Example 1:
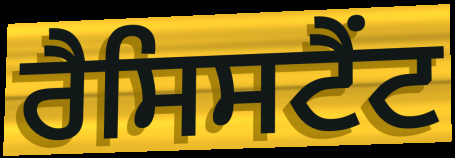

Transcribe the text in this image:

ਰੈਸਿਸਟੈਂਟ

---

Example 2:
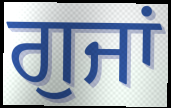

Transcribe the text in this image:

ਗੁਜਾਂ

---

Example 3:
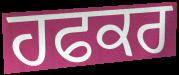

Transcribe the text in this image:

ਹਫਕਰ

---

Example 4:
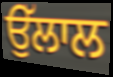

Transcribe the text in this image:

ਉੱਲਾਲ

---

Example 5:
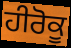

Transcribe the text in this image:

ਹੀਰੋਕੂ